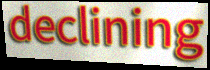
declining